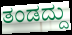
ತಂಡದ್ದು